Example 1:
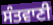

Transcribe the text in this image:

ਸੰਤਵਾਣੀ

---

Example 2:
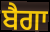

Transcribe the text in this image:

ਬੈਗਾ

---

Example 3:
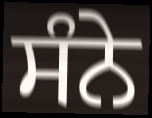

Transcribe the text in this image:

ਸੰਨੇ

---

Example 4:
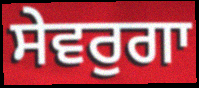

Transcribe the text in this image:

ਸੇਵਰੁਗਾ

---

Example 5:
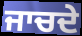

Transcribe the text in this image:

ਜਾਚਦੇ